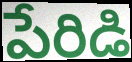
పేరిడి